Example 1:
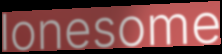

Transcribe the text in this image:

lonesome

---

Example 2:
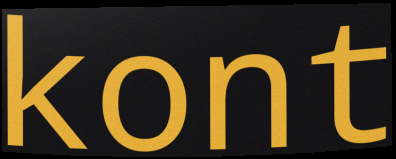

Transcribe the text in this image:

kont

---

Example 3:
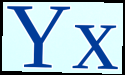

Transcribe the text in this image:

Yx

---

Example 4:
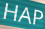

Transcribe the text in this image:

HAP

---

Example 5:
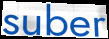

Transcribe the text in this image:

suber